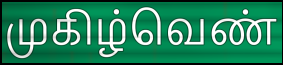
முகிழ்வெண்